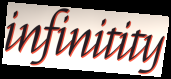
infinitity